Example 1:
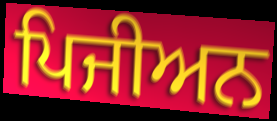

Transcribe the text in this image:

ਪਿਜੀਅਨ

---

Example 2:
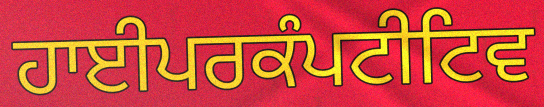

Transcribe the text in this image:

ਹਾਈਪਰਕੰਪਟੀਟਿਵ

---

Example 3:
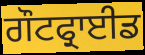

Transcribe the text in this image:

ਗੌਟਫ੍ਰਾਈਡ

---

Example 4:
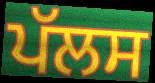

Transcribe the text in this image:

ਪੱਲਸ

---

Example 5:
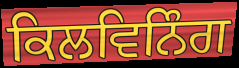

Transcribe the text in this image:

ਕਿਲਵਿਨਿੰਗ